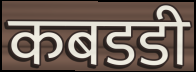
कबडडी